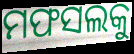
ମଫସଲକୁ